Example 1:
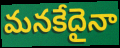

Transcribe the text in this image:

మనకేదైనా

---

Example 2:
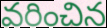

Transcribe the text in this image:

వరించిన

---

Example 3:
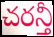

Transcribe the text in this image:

చరన్తీ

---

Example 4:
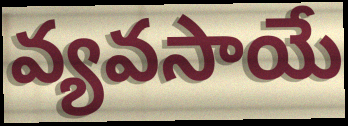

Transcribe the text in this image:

వ్యవసాయే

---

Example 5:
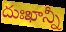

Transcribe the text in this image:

దుఃఖాన్నీ